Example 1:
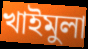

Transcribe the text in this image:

খাইমুলা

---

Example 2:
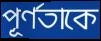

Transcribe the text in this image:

পূর্ণতাকে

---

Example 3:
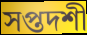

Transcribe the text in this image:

সপ্তদশী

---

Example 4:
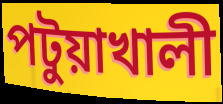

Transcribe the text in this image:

পটুয়াখালী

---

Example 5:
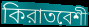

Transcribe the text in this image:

কিরাতবেশী